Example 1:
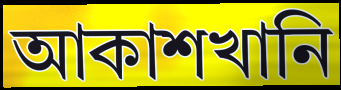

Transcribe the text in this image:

আকাশখানি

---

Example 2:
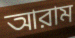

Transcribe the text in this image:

আরাম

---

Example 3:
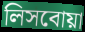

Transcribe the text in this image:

লিসবোয়া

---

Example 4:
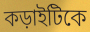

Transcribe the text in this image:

কড়াইটিকে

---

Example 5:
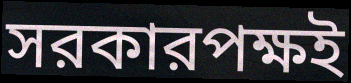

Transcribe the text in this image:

সরকারপক্ষই